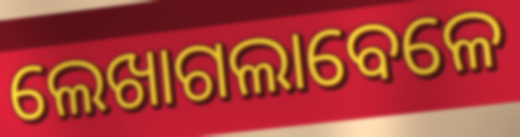
ଲେଖାଗଲାବେଳେ